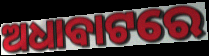
ଅଧାବାଟରେ